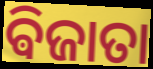
ଵିଜାତା